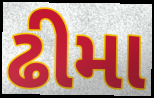
ઢીમા